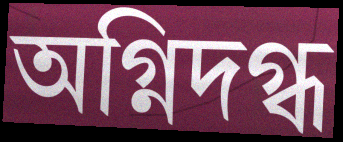
অগ্নিদগ্ধ